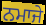
ਨਮਾਜੇ